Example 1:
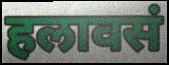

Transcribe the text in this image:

हलावसं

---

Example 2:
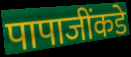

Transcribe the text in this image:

पापाजींकडे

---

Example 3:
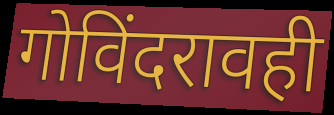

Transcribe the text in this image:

गोविंदरावही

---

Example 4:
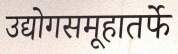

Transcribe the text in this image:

उद्योगसमूहातर्फे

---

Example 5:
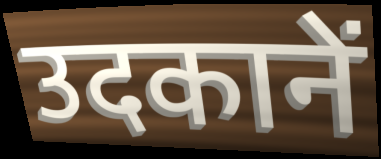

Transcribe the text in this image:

उदकानें